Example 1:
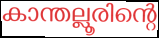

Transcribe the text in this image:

കാന്തല്ലൂരിന്റെ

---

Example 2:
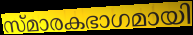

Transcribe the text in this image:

സ്മാരകഭാഗമായി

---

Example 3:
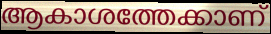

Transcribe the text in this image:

ആകാശത്തേക്കാണ്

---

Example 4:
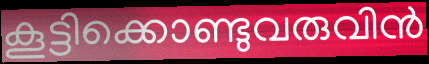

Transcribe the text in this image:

കൂട്ടിക്കൊണ്ടുവരുവിൻ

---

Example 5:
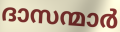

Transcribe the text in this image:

ദാസന്മാർ